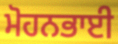
ਮੋਹਨਭਾਈ